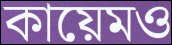
কায়েমও